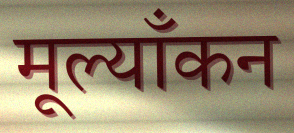
मूल्याँकन